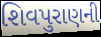
શિવપુરાણની